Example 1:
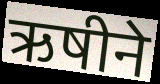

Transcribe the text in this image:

ऋषीने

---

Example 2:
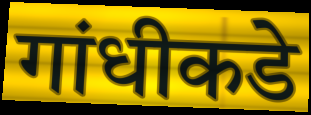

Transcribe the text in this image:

गांधीकडे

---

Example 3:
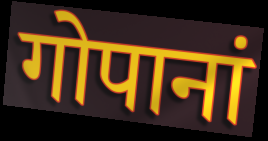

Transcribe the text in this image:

गोपानां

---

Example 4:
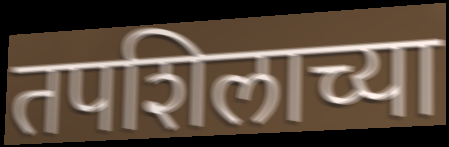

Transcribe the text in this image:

तपशिलाच्या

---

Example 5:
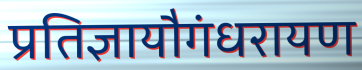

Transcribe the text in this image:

प्रतिज्ञायौगंधरायण